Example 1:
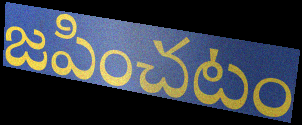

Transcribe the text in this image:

జపించటం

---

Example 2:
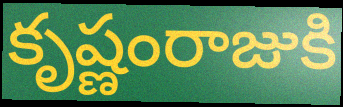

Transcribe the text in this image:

కృష్ణంరాజుకి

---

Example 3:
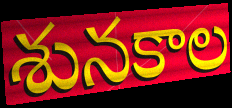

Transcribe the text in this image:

శునకాల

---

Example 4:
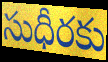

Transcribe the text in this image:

సుధీరకు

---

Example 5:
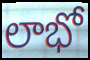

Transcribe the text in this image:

లాభో